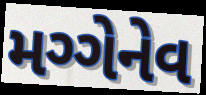
મગ્ગેનેવ